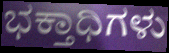
ಭಕ್ತಾಧಿಗಳು